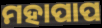
ମହାପାପ